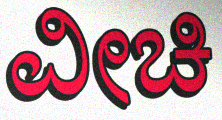
ವೀಚಿ